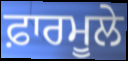
ਫ਼ਾਰਮੂਲੇ